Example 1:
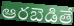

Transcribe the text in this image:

ఆరబెడితే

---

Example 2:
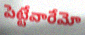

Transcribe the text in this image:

పెట్టేవారేమో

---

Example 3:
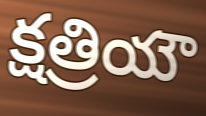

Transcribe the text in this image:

క్షత్రియౌ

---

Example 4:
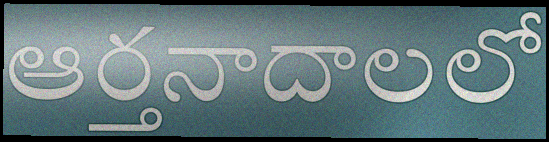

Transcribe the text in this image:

ఆర్తనాదాలలో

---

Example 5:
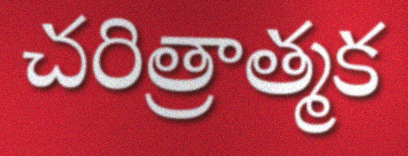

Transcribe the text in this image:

చరిత్రాత్మక